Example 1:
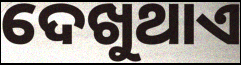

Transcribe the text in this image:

ଦେଖୁଥାଏ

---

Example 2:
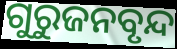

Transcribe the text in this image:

ଗୁରୁଜନବୃନ୍ଦ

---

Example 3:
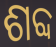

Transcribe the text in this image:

ଶବ୍ଦ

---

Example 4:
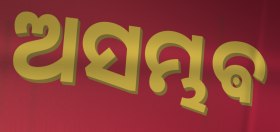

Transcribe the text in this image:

ଅସମ୍ଭଵ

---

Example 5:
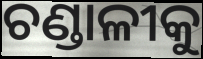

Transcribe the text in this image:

ଚଣ୍ଡାଳୀକୁ